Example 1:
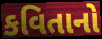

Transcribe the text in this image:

કવિતાનો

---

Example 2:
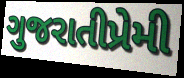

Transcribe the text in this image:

ગુજરાતીપ્રેમી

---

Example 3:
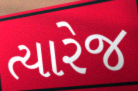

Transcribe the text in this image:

ત્યારેજ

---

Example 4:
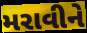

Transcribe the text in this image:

મરાવીને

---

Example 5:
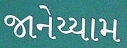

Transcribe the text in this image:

જાનેય્યામ